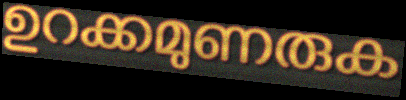
ഉറക്കമുണരുക